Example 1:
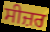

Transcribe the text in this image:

ਸੀਜ਼ਰ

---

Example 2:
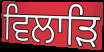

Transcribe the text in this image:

ਵਿਲਾੜਿ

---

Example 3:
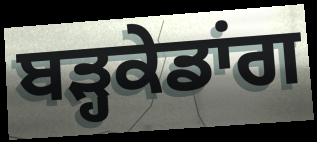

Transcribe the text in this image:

ਬੜ੍ਹਕੇਡਾਂਗ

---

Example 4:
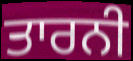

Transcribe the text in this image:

ਤਾਰਨੀ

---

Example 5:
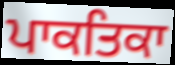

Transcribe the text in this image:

ਪਾਕਤਿਕਾ